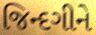
જિન્દગીને